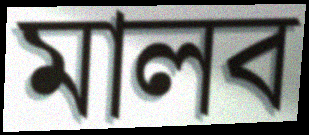
মালব